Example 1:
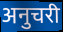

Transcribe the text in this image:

अनुचरी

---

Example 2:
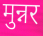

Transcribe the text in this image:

मुन्नर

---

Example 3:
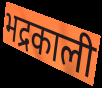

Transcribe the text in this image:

भद्रकाली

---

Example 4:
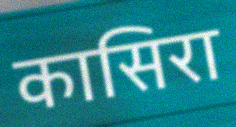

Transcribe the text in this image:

कासिरा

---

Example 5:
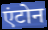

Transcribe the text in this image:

एंटोन